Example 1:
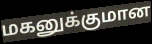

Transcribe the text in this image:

மகனுக்குமான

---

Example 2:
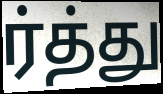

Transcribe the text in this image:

ர்த்து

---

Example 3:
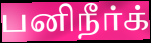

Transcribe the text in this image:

பனிநீர்க்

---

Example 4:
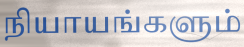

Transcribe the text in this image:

நியாயங்களும்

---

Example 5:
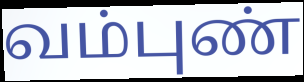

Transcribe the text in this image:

வம்புண்